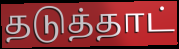
தடுத்தாட்